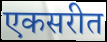
एकसरीत